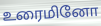
உரைமினோ